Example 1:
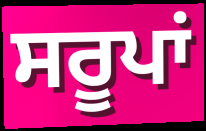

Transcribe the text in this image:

ਸਰੂਪਾਂ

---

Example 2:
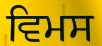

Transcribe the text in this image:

ਵਿਮਸ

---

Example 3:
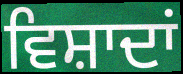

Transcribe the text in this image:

ਵਿਸ਼ਾਦਾਂ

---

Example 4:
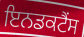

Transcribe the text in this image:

ਇਨਡਕਟੈਂਸ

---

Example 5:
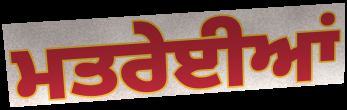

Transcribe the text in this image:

ਮਤਰੇਈਆਂ